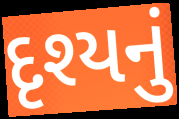
દૃશ્યનું